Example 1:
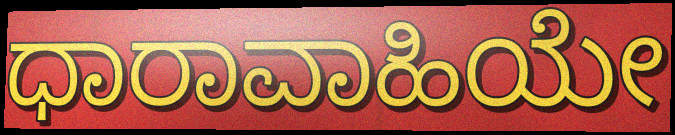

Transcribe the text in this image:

ಧಾರಾವಾಹಿಯೇ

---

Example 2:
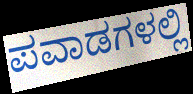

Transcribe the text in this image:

ಪವಾಡಗಳಲ್ಲಿ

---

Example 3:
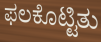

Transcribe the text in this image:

ಫಲಕೊಟ್ಟಿತು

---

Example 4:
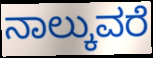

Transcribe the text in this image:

ನಾಲ್ಕುವರೆ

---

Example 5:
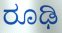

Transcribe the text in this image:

ರೂಢಿ